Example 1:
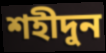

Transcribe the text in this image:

শহীদুন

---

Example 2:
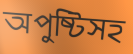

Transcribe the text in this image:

অপুষ্টিসহ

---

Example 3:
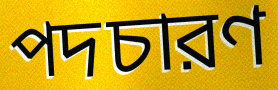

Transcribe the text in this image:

পদচারণ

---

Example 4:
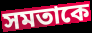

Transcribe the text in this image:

সমতাকে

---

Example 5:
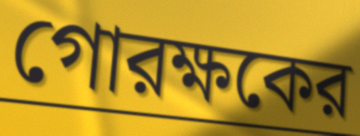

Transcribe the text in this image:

গোরক্ষকের